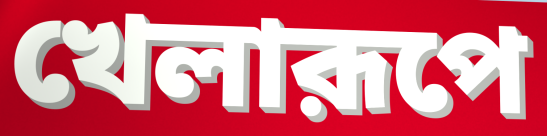
খেলারূপে